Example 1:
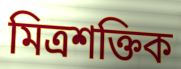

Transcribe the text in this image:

মিত্ৰশক্তিক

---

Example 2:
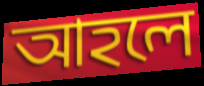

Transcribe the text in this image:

আহলে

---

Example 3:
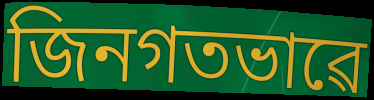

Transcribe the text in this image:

জিনগতভাৱে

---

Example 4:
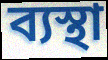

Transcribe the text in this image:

ব্যস্থা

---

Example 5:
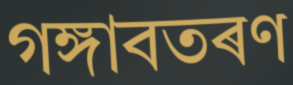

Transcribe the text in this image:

গঙ্গাবতৰণ